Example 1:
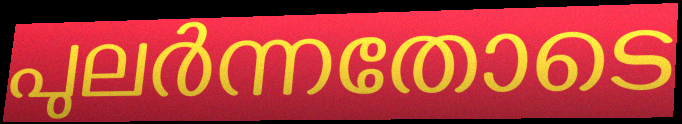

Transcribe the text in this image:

പുലർന്നതോടെ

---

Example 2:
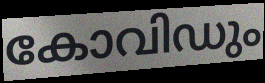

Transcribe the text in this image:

കോവിഡും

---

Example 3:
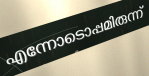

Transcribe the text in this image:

എന്നോടൊപ്പമിരുന്ന്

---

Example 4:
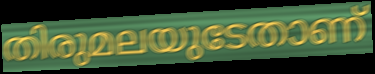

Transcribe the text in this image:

തിരുമലയുടേതാണ്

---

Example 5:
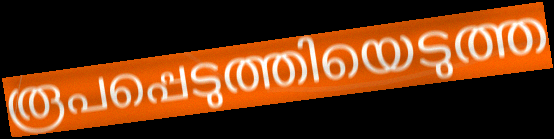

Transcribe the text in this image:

രൂപപ്പെടുത്തിയെടുത്ത